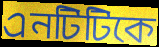
এনটিটিকে